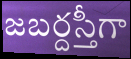
జబర్దస్తీగా